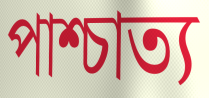
পাশ্চাত্য